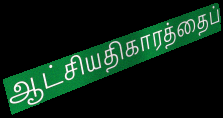
ஆட்சியதிகாரத்தைப்